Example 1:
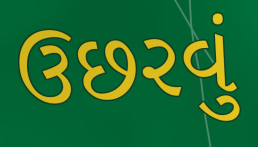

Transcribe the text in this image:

ઉછરવું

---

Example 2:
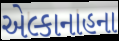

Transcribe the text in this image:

એલ્કાનાહના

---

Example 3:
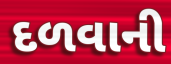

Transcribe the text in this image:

દળવાની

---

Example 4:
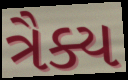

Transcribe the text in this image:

ત્રૈક્ય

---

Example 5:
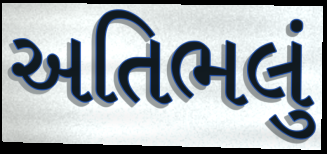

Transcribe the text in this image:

અતિભલું